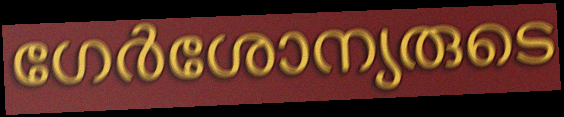
ഗേർശോന്യരുടെ